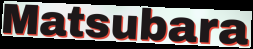
Matsubara